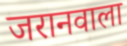
जरानवाला